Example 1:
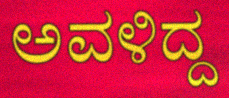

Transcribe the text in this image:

ಅವಳಿದ್ದ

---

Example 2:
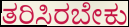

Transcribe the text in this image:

ತರಿಸಿರಬೇಕು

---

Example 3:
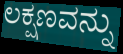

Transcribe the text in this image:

ಲಕ್ಷಣವನ್ನು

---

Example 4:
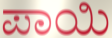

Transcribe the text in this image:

ಪಾಯಿ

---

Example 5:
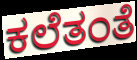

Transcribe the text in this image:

ಕಲೆತಂತೆ